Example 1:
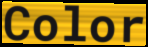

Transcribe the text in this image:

Color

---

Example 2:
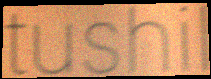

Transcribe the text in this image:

tushil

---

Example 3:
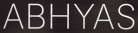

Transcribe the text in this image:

ABHYAS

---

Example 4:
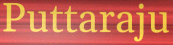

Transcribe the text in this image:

Puttaraju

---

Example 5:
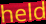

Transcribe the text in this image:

held